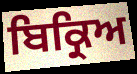
ਬਿਕ੍ਰਿਅ